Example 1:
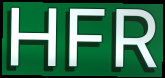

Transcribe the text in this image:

HFR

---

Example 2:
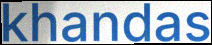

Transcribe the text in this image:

khandas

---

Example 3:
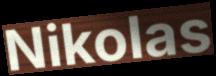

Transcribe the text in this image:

Nikolas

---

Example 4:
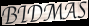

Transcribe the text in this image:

BIDMAS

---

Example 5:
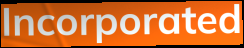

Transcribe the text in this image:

Incorporated